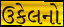
ઉકેલનો